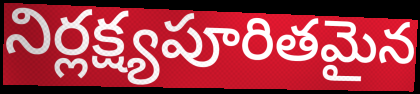
నిర్లక్ష్యపూరితమైన